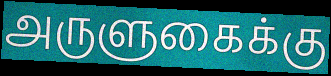
அருளுகைக்கு